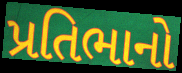
પ્રતિભાનો